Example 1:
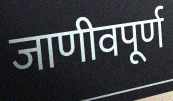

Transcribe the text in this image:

जाणीवपूर्ण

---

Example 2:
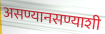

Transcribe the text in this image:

असण्यानसण्याशी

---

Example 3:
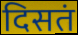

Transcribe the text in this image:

दिसतं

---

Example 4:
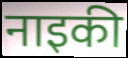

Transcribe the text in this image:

नाइकी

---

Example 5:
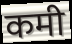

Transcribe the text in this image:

कमी